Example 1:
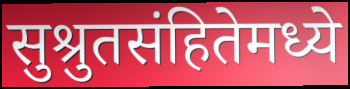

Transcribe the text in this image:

सुश्रुतसंहितेमध्ये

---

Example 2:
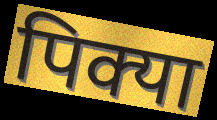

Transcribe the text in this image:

पिक्या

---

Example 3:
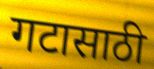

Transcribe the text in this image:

गटासाठी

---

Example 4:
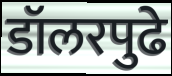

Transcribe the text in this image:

डॉलरपुढे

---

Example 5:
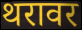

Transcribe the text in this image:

थरावर